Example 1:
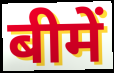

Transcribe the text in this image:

बीमें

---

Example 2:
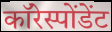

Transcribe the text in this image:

कॉरेस्पोंडेंट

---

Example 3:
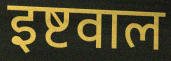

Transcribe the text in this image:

इष्टवाल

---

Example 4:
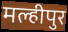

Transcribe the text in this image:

मल्हीपुर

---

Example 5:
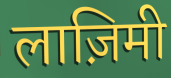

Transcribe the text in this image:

लाज़िमी